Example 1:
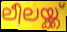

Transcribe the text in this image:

ലീലയ്ക്ക്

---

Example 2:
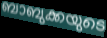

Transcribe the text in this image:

ബാബുക്കയുടെ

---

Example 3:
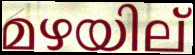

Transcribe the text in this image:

മഴയില്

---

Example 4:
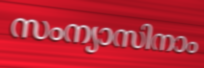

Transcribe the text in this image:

സംന്യാസിനാം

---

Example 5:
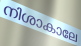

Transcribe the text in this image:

നിശാകാലേ